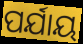
ପର୍ଯାୟ